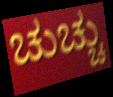
ಚುಚ್ಚು